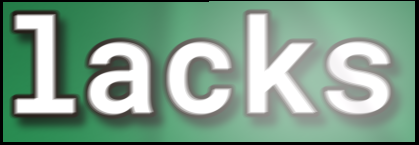
lacks